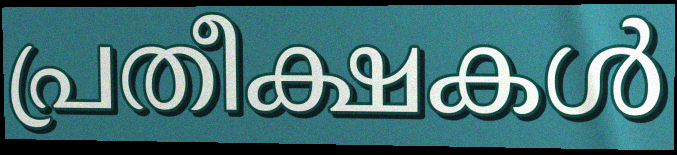
പ്രതീക്ഷകൾ